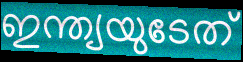
ഇന്ത്യയുടേത്